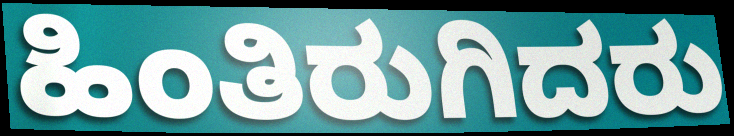
ಹಿಂತಿರುಗಿದರು